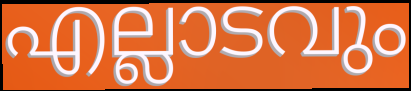
എല്ലാടവും